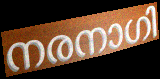
നരനാഗി